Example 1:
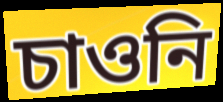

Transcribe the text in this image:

চাওনি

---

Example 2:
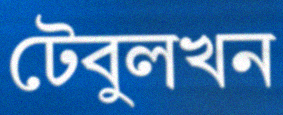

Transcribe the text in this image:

টেবুলখন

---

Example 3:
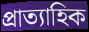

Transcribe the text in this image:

প্ৰাত্যাহিক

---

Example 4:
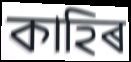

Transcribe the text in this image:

কাহিৰ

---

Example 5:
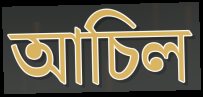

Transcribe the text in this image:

আচিল